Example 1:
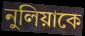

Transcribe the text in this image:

নুলিয়াকে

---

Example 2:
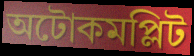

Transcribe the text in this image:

অটোকমপ্লিট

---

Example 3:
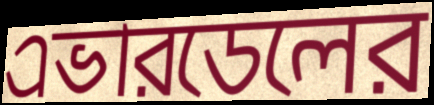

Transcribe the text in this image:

এভারডেলের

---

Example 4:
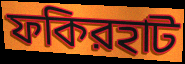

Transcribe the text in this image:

ফকিরহাট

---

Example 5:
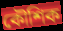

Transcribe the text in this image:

কৌশিক